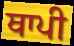
ਥਾਪੀ